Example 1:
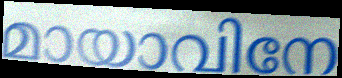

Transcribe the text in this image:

മായാവിനേ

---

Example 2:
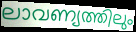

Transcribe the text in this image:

ലാവണ്യത്തിലും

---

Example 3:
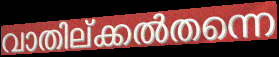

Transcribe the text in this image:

വാതില്ക്കൽതന്നെ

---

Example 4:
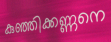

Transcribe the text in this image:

കുഞ്ഞിക്കണ്ണനെ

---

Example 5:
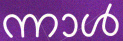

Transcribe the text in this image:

ന്നാൾ